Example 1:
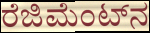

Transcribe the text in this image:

ರೆಜಿಮೆಂಟ್‌ನ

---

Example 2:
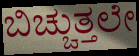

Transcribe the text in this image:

ಬಿಚ್ಚುತ್ತಲೇ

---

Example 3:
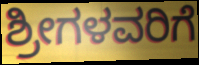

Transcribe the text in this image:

ಶ್ರೀಗಳವರಿಗೆ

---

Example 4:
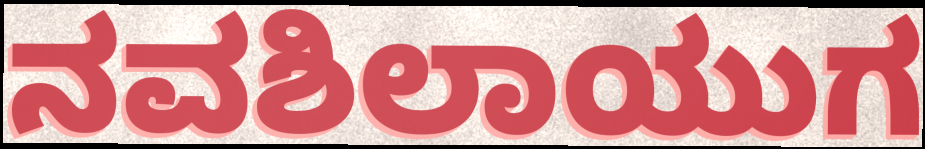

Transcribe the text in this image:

ನವಶಿಲಾಯುಗ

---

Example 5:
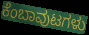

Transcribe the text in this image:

ಕೆಂಬಾವುಟಗಳು